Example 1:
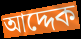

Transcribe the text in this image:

আদ্দেক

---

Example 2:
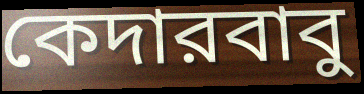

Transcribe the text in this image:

কেদারবাবু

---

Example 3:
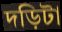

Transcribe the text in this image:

দড়িটা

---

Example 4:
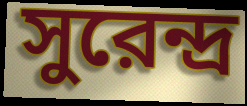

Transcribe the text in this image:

সুরেন্দ্র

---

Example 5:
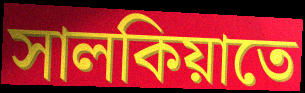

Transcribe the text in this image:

সালকিয়াতে